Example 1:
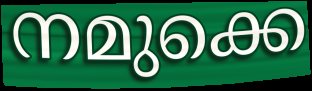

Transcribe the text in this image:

നമുക്കെ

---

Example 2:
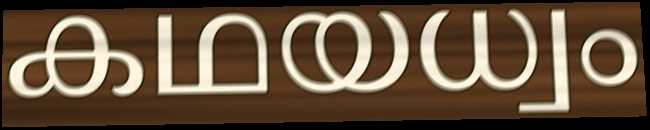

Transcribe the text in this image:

കഥയധ്വം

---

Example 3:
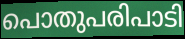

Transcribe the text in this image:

പൊതുപരിപാടി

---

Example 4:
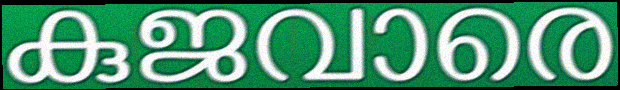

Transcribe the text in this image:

കുജവാരെ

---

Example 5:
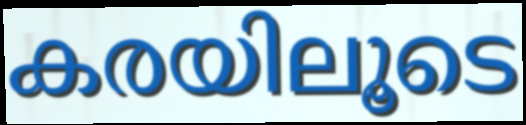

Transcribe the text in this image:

കരയിലൂടെ